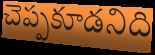
చెప్పకూడనిది